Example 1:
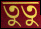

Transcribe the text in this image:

তুতু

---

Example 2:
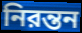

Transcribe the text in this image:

নিরন্তন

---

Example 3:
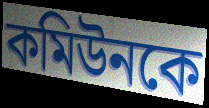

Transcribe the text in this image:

কমিউনকে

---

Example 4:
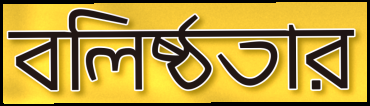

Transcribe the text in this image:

বলিষ্ঠতার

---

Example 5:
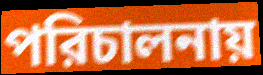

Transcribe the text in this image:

পরিচালনায়